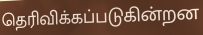
தெரிவிக்கப்படுகின்றன